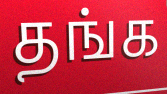
தங்க